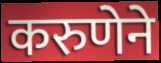
करुणेने